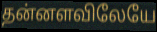
தன்னளவிலேயே